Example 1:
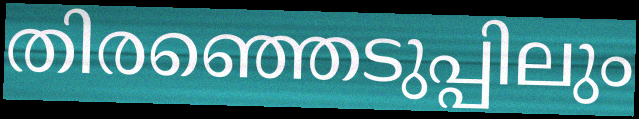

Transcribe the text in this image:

തിരഞ്ഞെടുപ്പിലും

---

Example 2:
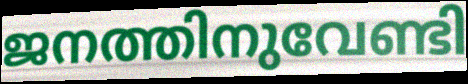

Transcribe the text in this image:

ജനത്തിനുവേണ്ടി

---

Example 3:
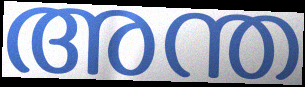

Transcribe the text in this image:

അന്ത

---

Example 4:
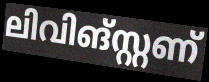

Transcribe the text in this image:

ലിവിങ്സ്റ്റണ്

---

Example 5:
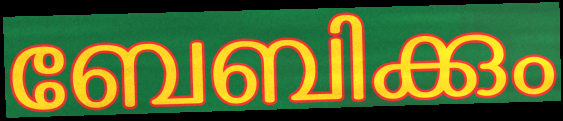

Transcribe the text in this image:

ബേബിക്കും